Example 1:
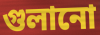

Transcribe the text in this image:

গুলানো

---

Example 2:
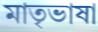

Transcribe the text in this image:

মাতৃভাষা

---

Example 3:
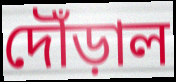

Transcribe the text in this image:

দৌঁড়াল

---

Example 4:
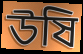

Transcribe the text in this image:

উষি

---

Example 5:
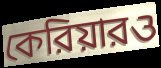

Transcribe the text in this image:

কেরিয়ারও